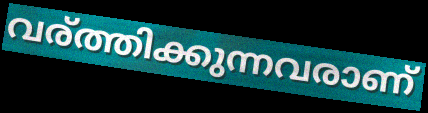
വര്ത്തിക്കുന്നവരാണ്